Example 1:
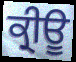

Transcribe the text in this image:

ਕ੍ਰੀਊ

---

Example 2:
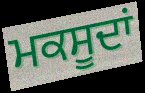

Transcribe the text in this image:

ਮਕਸੂਦਾਂ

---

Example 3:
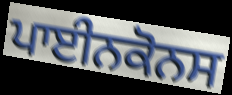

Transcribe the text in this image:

ਪਾਈਨਕੋਨਸ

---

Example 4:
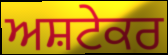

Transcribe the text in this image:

ਅਸ਼ਟੇਕਰ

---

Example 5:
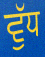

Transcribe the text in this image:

ਵੁੱਧ